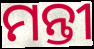
ମନ୍ତୀ